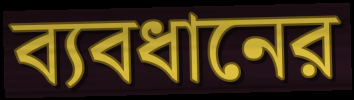
ব্যবধানের